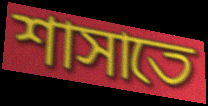
শাসাতে